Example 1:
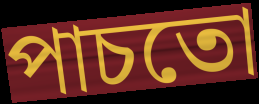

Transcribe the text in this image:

পাচতো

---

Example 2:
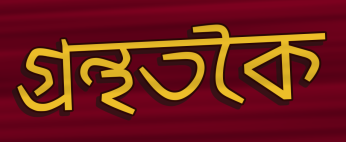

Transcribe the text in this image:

গ্ৰন্থতকৈ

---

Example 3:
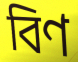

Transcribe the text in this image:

বিণ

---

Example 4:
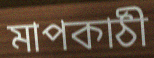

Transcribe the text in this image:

মাপকাঠী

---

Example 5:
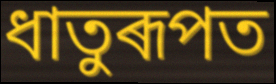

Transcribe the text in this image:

ধাতুৰূপত